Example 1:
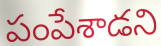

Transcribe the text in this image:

పంపేశాడని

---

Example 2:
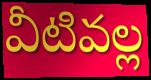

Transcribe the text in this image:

వీటివల్ల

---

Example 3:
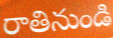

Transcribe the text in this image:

రాతినుండి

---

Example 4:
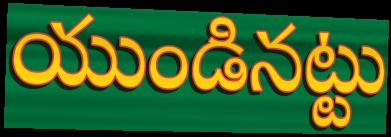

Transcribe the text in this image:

యుండినట్టు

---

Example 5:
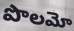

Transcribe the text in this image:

పొలమో